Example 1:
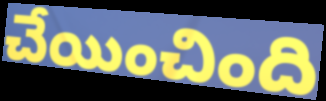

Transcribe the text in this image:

చేయించింది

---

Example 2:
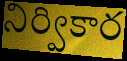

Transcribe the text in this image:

నిర్వికార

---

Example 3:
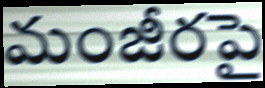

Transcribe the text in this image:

మంజీరపై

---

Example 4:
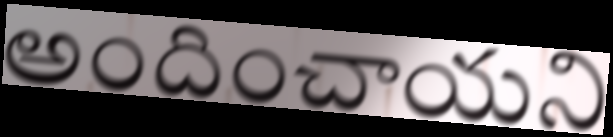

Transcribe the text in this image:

అందించాయని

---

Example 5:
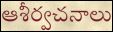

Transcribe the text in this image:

ఆశీర్వచనాలు